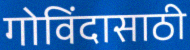
गोविंदासाठी